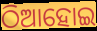
ଠିଆହୋଇ